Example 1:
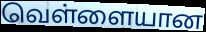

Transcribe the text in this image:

வெள்ளையான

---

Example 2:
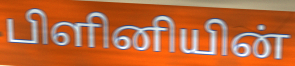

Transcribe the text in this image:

பிளினியின்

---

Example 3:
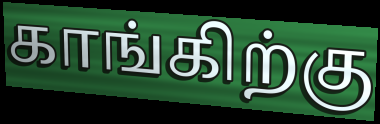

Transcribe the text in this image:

காங்கிற்கு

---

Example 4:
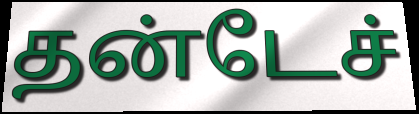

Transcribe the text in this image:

தன்டேச்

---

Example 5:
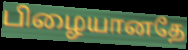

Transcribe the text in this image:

பிழையானதே